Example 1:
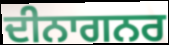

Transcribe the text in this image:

ਦੀਨਾਗਨਰ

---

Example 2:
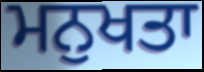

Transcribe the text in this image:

ਮਨੁਖਤਾ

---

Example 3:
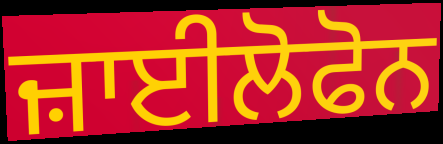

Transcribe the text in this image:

ਜ਼ਾਈਲੋਫੋਨ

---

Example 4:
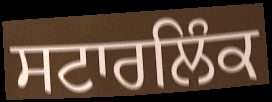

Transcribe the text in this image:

ਸਟਾਰਲਿੰਕ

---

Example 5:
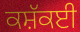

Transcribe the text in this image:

ਕਸ਼ੱਕਈ